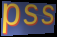
pss